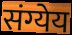
संग्येय